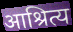
आश्रित्य